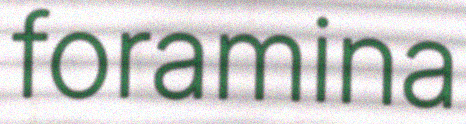
foramina